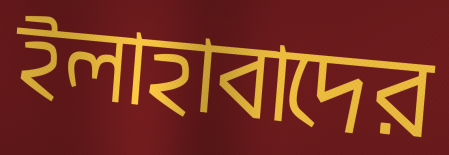
ইলাহাবাদের